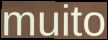
muito